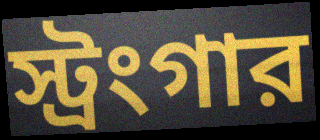
স্ট্রংগার